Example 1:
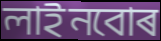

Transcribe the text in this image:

লাইনবোৰ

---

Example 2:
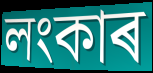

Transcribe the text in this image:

লংকাৰ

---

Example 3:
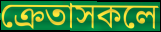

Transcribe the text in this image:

ক্ৰেতাসকলে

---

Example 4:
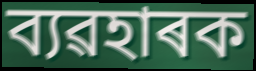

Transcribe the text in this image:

ব্যৱহাৰক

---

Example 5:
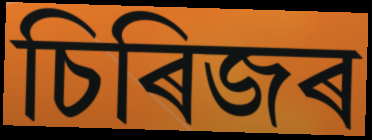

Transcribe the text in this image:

চিৰিজৰ